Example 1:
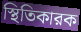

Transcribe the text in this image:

স্থিতিকারক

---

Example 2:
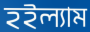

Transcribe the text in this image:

হইল্যাম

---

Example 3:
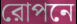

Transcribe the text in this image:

রোপনে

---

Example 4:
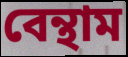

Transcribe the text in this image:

বেন্থাম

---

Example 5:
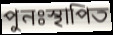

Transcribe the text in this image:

পুনঃস্থাপিত